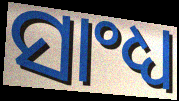
ସାଂଧ୍ୟ